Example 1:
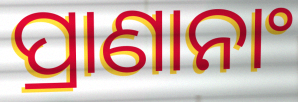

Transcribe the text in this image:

ପ୍ରାଣାନାଂ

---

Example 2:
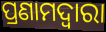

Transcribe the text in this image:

ପ୍ରଣାମଦ୍ୱାରା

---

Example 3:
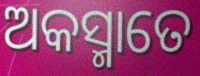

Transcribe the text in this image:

ଅକସ୍ମାତେ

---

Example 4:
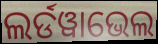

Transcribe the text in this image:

ଲର୍ଡୱାଭେଲ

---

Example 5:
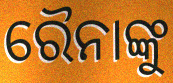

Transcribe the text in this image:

ରୈନାଙ୍କୁ